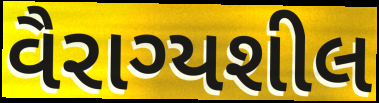
વૈરાગ્યશીલ